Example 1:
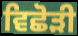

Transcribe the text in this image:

ਵਿਛੋੜੀ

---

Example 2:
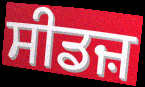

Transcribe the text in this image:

ਸੀਡਜ਼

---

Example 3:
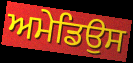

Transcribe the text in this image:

ਅਮੇਡਿਉਸ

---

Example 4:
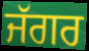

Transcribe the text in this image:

ਜੱਗਰ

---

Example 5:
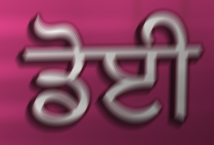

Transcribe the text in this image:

ਡੋਈ